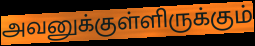
அவனுக்குள்ளிருக்கும்